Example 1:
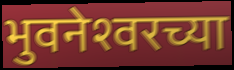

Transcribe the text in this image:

भुवनेश्वरच्या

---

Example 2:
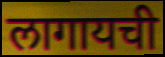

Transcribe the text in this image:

लागायची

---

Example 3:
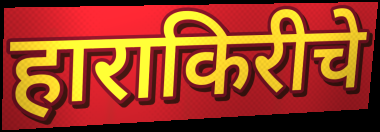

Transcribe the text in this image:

हाराकिरीचे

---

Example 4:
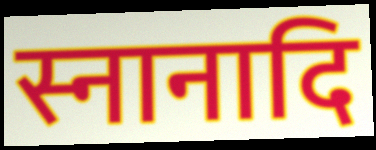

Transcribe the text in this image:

स्नानादि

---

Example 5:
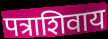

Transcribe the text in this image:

पत्राशिवाय